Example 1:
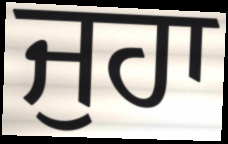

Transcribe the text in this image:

ਜੁਹਾ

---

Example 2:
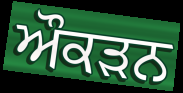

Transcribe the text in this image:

ਔਕੜਨ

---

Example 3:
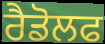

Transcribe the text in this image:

ਰੈਡੋਲਫ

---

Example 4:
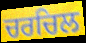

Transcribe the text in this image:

ਚਰਚਿਲ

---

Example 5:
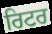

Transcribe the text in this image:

ਰਿਟਰ